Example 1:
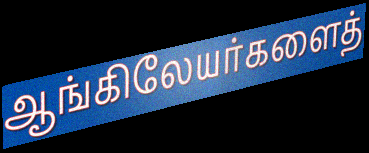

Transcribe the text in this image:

ஆங்கிலேயர்களைத்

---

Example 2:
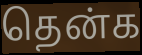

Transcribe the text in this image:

தென்க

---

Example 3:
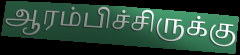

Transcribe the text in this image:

ஆரம்பிச்சிருக்கு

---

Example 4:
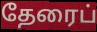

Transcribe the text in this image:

தேரைப்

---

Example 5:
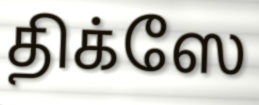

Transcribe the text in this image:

திக்ஸே